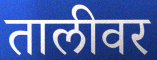
तालीवर